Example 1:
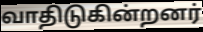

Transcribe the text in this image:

வாதிடுகின்றனர்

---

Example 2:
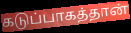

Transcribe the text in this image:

கடுப்பாகத்தான்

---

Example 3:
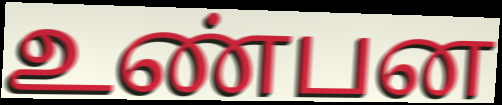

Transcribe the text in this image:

உண்பன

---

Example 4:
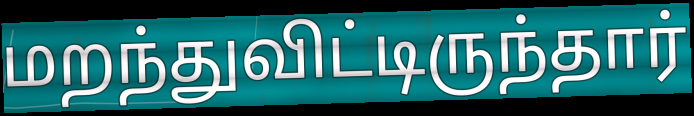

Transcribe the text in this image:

மறந்துவிட்டிருந்தார்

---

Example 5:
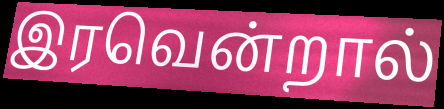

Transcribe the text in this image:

இரவென்றால்